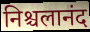
निश्चलानंद